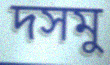
দসমু